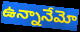
ఉన్నానేమో